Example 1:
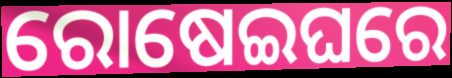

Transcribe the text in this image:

ରୋଷେଇଘରେ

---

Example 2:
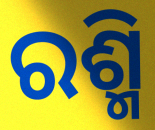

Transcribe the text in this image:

ରଶ୍ମି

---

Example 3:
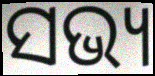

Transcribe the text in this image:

ସଭ୍ୟ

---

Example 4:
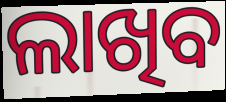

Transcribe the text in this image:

ଲାଖିବ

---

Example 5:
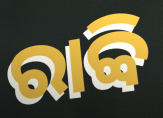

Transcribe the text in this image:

ରାବ୍ବି